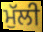
ਮੁੱਲੀ